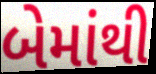
બેમાંથી